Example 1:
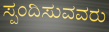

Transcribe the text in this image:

ಸ್ಪಂದಿಸುವವರು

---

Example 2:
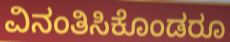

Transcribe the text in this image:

ವಿನಂತಿಸಿಕೊಂಡರೂ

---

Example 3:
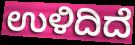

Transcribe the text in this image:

ಉಳಿದಿದೆ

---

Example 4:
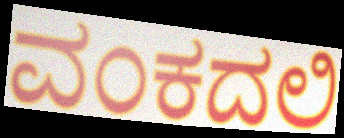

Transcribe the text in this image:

ವಂಕದಲಿ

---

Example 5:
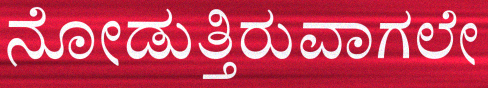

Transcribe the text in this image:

ನೋಡುತ್ತಿರುವಾಗಲೇ